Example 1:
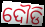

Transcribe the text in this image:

ଦୌଡି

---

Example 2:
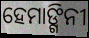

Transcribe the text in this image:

ହେମାଙ୍ଗିନୀ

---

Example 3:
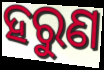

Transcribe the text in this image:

ହରୁଣ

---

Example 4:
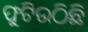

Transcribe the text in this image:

ଫୁଟିଉଠିଛି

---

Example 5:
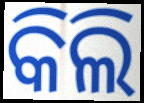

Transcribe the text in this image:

କିଲି